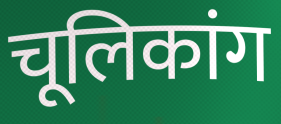
चूलिकांग